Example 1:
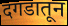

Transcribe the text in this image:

दगडातून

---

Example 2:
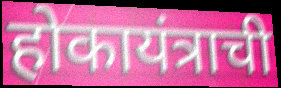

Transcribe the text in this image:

होकायंत्राची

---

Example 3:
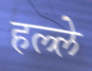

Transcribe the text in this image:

हल्ले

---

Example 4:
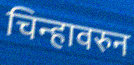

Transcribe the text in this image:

चिन्हावरुन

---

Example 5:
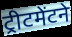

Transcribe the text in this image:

ट्रीटमेंटने